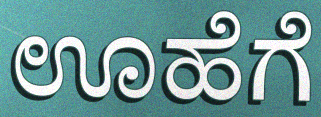
ಊಹೆಗೆ